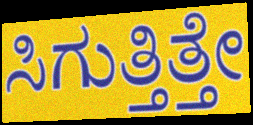
ಸಿಗುತ್ತಿತ್ತೇ